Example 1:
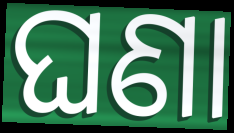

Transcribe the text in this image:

ଘଣା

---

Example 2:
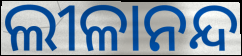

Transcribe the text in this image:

ଲୀଳାନନ୍ଦ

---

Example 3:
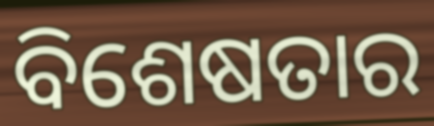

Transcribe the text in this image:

ବିଶେଷତାର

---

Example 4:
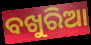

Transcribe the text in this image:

ବଖୁରିଆ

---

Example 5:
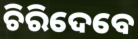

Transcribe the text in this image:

ଚିରିଦେବେ